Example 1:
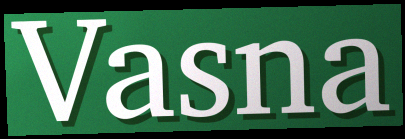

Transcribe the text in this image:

Vasna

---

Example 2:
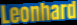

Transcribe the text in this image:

Leonhard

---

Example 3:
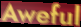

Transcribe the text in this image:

Aweful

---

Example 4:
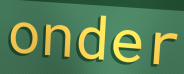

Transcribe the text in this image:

onder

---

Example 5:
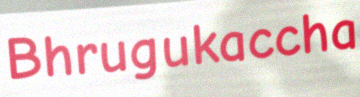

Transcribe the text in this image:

Bhrugukaccha